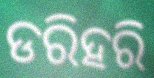
ଡରିହରି